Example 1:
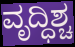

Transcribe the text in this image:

ವೃದ್ಧಿಶ್ಚ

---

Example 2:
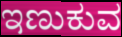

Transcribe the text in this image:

ಇಣುಕುವ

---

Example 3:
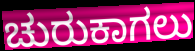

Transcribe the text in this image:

ಚುರುಕಾಗಲು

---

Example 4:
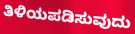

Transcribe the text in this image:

ತಿಳಿಯಪಡಿಸುವುದು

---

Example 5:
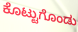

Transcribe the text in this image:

ಕೊಟ್ಟುಗೊಂಡು